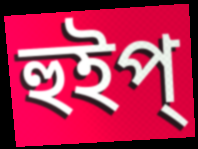
হুইপ্